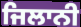
ਜਿਲਾਨੀ